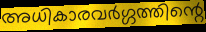
അധികാരവർഗ്ഗത്തിന്റെ